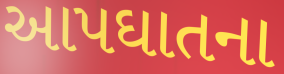
આપઘાતના